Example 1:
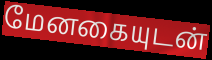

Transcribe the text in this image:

மேனகையுடன்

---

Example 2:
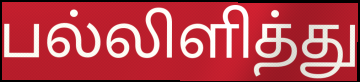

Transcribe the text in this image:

பல்லிளித்து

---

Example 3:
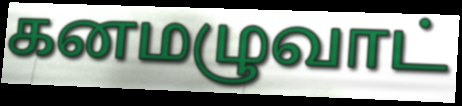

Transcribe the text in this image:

கனமழுவாட்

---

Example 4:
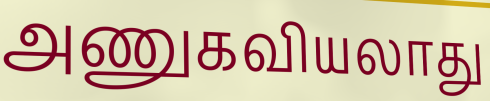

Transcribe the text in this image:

அணுகவியலாது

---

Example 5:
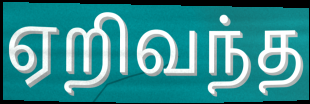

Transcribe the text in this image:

ஏறிவந்த